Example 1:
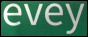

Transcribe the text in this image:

evey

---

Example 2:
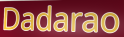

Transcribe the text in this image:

Dadarao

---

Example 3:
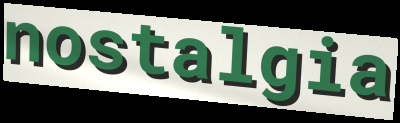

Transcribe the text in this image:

nostalgia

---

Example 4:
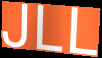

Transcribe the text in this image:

JLL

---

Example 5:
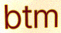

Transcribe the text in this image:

btm